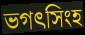
ভগৎসিংহ